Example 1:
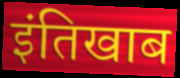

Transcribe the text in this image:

इंतिखाब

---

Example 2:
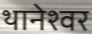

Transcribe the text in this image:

थानेश्वर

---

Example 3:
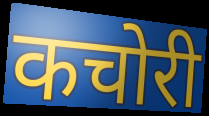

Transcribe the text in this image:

कचोरी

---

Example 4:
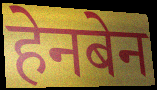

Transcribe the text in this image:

हेनबेन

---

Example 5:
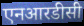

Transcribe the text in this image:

एनआरडीसी